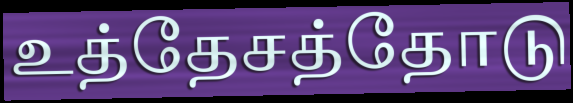
உத்தேசத்தோடு